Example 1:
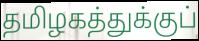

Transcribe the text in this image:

தமிழகத்துக்குப்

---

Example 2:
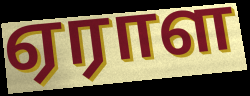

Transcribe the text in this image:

ஏராள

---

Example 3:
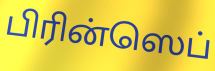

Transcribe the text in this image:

பிரின்ஸெப்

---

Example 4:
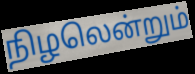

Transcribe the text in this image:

நிழலென்றும்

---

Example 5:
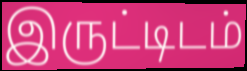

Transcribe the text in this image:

இருட்டிடம்